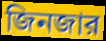
জিনজার